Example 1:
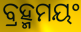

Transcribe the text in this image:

ବ୍ରହ୍ମମୟଂ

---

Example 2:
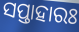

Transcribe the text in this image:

ସପ୍ତାହାରଃ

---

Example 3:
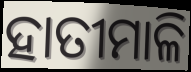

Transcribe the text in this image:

ହାତୀମାଳି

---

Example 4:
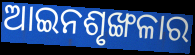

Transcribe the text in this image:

ଆଇନଶୃଙ୍ଖଳାର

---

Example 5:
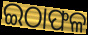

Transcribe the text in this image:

ଇଠାଫଳ